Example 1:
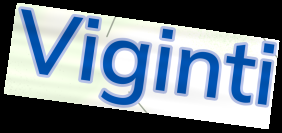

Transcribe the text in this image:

Viginti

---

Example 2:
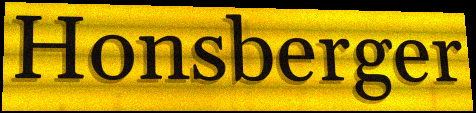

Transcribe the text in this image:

Honsberger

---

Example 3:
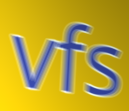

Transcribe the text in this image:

vfs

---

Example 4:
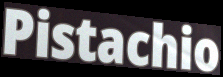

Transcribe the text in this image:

Pistachio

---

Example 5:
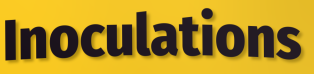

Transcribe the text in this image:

Inoculations